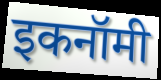
इकनॉमी